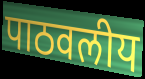
पाठवलीय